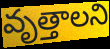
వృత్తాలని